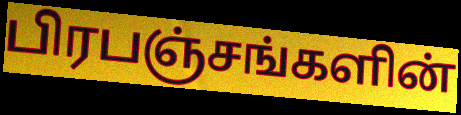
பிரபஞ்சங்களின்